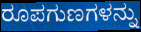
ರೂಪಗುಣಗಳನ್ನು